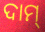
ଦାମ୍